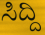
ಸಿದ್ದಿ